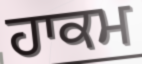
ਹਾਕਮ